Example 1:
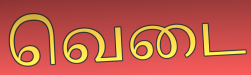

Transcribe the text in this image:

வெடை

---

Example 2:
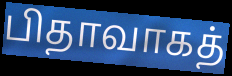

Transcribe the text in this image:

பிதாவாகத்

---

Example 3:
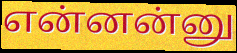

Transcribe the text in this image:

என்னன்னு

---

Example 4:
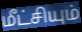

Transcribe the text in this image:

மீட்சியும்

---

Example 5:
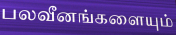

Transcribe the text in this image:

பலவீனங்களையும்